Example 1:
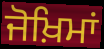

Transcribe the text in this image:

ਜੋਖ਼ਿਮਾਂ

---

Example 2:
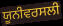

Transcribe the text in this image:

ਯੂਨੀਵਰਸਲੀ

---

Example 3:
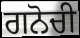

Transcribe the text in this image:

ਗਨੋਚੀ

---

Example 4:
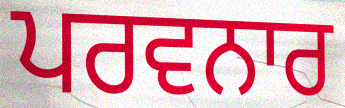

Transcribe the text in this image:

ਪਰਵਨਾਰ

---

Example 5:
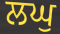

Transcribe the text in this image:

ਲਘੁ